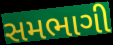
સમભાગી